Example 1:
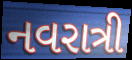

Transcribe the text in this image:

નવરાત્રી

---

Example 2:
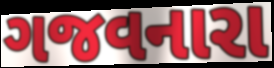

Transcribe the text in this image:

ગજવનારા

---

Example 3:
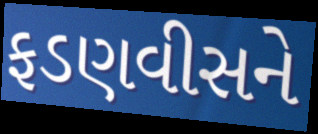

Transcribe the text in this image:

ફડણવીસને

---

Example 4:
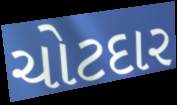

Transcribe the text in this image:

ચોટદાર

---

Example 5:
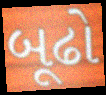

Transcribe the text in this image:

બૂઢો